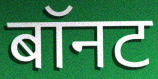
बॉनट